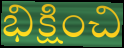
భిక్షించి